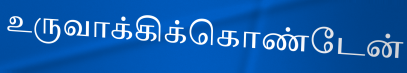
உருவாக்கிக்கொண்டேன்